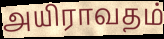
அயிராவதம்